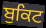
ਬੁਕਿਟ